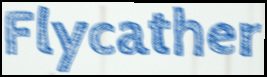
Flycather